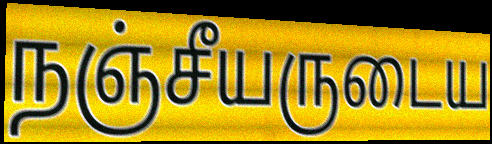
நஞ்சீயருடைய